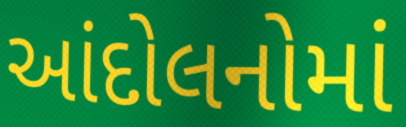
આંદોલનોમાં